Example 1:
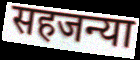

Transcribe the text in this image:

सहजन्या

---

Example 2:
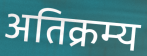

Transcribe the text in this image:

अतिक्रम्य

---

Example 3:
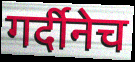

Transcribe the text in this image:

गर्दीनेच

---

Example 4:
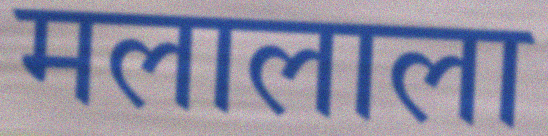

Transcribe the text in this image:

मलालाला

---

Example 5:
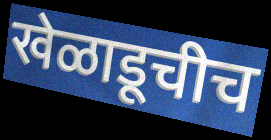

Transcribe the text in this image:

खेळाडूचीच